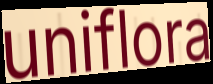
uniflora